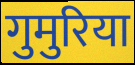
गुमुरिया